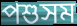
পশুসম